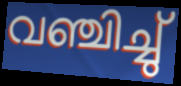
വഞ്ചിച്ചു്